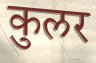
कुलर